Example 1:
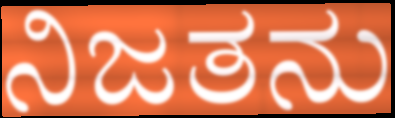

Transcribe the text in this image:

ನಿಜತನು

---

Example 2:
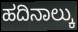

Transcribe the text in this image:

ಹದಿನಾಲ್ಕು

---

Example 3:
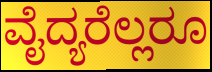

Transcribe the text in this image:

ವೈದ್ಯರೆಲ್ಲರೂ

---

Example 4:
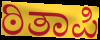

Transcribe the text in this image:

ಠಿತಾಪಿ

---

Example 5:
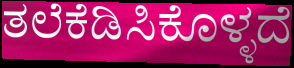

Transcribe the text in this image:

ತಲೆಕೆಡಿಸಿಕೊಳ್ಳದೆ